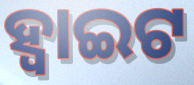
ହ୍ୱାଇଟ